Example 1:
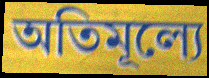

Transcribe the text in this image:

অতিমূল্যে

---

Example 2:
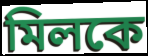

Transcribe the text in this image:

মিলকে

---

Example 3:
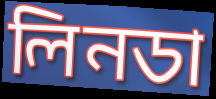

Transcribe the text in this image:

লিনডা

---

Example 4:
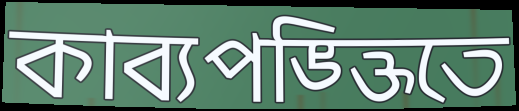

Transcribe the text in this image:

কাব্যপঙ্ক্তিতে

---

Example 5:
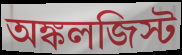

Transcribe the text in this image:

অঙ্কলজিস্ট